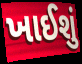
ખાઈશું